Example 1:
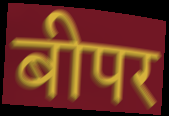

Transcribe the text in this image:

बीपर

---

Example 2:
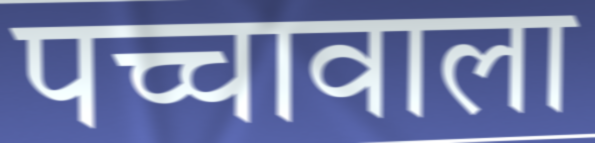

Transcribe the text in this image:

पच्चावाला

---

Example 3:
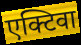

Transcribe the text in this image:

एक्टिवा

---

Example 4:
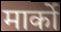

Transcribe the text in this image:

मार्को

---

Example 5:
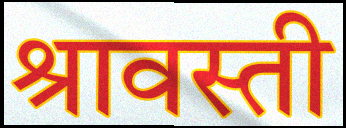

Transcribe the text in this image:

श्रावस्ती